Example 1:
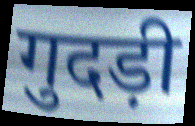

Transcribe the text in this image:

गुदड़ी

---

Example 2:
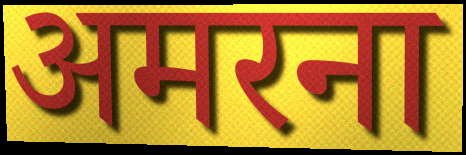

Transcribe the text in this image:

अमरना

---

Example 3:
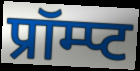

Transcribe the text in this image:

प्रॉम्प्ट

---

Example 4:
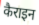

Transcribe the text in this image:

कैराइन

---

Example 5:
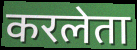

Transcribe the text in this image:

करलेता